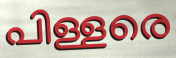
പിള്ളരെ